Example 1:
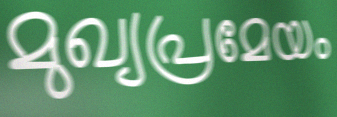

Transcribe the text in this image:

മുഖ്യപ്രമേയം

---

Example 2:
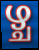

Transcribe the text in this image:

ഴ്ച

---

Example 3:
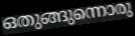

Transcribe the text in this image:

ഒതുങ്ങുന്നൊരു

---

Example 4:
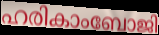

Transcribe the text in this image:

ഹരികാംബോജി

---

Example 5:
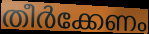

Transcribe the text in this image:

തീർക്കേണം